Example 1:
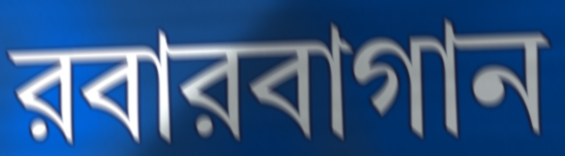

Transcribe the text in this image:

রবারবাগান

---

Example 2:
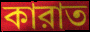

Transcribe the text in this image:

কারাত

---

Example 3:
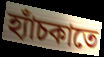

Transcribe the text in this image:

হ্যাঁচকাতে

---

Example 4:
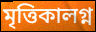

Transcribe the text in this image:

মৃত্তিকালগ্ন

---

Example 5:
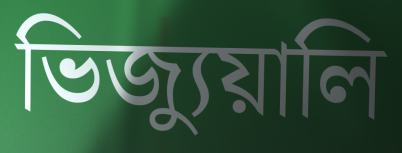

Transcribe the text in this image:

ভিজ্যুয়ালি